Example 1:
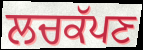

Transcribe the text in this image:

ਲਚਕੱਪਣ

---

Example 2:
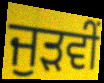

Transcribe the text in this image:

ਜੁੜਵੀਂ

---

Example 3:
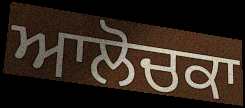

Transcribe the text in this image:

ਆਲੋਚਕਾ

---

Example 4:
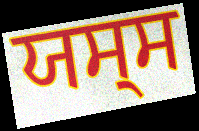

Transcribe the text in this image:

ਯਸ੍ਸ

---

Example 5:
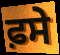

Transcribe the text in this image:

ਫ਼ਸੇ